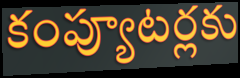
కంప్యూటర్లకు